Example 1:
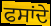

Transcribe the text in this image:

ਫਸਾਂਦੇ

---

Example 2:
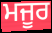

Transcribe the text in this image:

ਮਜੂਰ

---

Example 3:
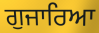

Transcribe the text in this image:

ਗੁਜਾਰਿਆ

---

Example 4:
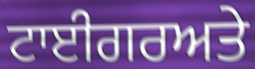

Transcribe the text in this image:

ਟਾਈਗਰਅਤੇ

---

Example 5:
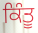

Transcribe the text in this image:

ਕਿੰਤੂ